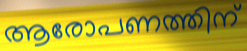
ആരോപണത്തിന്